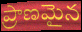
ప్రాణమైన